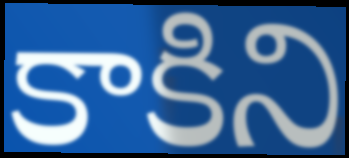
కాకిని